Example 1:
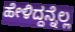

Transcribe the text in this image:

ಹೇಳಿದ್ದನ್ನೆಲ್ಲ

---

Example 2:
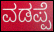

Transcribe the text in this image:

ವಡಪ್ಪೆ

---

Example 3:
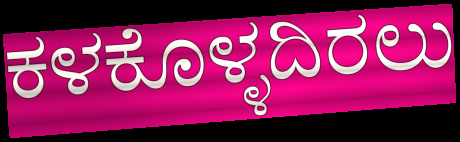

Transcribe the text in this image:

ಕಳಕೊಳ್ಳದಿರಲು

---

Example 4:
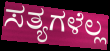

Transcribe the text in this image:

ಸತ್ಯಗಳೆಲ್ಲ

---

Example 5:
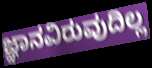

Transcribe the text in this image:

ಜ್ಞಾನವಿರುವುದಿಲ್ಲ